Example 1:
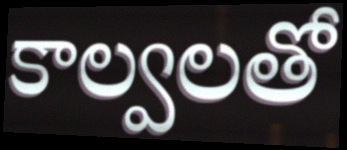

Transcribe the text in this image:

కాల్వలతో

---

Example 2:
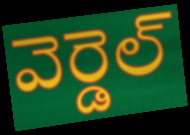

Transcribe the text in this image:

వెర్డెల్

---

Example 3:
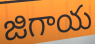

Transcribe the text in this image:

జిగాయ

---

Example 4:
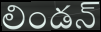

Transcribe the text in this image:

లిండన్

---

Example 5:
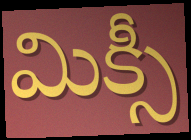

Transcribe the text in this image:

మిక్సీ